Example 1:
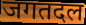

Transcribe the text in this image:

जगतदल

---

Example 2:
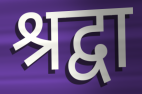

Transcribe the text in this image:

श्रद्वा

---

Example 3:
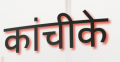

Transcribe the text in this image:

कांचीके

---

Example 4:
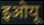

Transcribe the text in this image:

इओयू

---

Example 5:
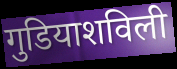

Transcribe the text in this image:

गुडियाशविली